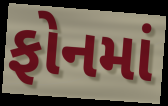
ફોનમાં